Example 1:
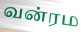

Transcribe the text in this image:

வன்ரம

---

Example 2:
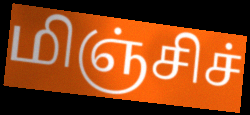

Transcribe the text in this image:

மிஞ்சிச்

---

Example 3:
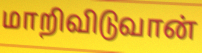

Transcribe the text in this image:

மாறிவிடுவான்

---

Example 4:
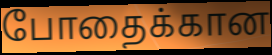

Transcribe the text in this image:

போதைக்கான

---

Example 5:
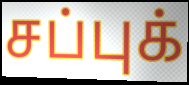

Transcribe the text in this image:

சப்புக்